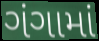
ગંગામાં